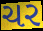
ચર